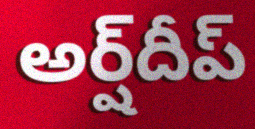
అర్ష్‌దీప్